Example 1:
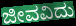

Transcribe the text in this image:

ಜೀವವಿದು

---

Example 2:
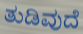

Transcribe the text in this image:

ತುಡಿವುದೆ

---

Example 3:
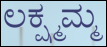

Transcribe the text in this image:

ಲಕ್ಷ್ಮಮ್ಮ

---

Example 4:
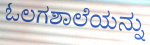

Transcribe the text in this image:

ಓಲಗಶಾಲೆಯನ್ನು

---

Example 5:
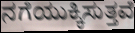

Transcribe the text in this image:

ನಗೆಯುಕ್ಕಿಸುತ್ತವೆ